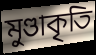
মুণ্ডাকৃতি